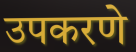
उपकरणे